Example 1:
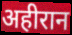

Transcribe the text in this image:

अहीरान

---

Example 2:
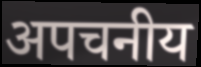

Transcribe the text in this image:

अपचनीय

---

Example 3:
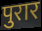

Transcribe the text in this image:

पुरार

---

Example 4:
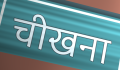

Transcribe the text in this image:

चीखना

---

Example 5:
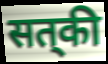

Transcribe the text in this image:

सत्‌की